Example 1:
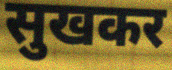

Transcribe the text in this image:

सुखकर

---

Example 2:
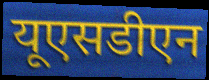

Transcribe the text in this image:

यूएसडीएन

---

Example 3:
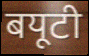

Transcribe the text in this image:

बयूटी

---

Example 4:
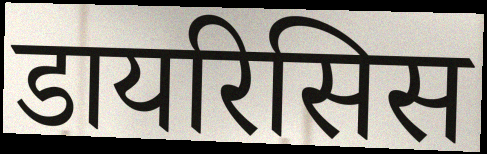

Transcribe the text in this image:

डायरिसिस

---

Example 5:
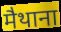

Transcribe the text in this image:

मैथाना